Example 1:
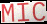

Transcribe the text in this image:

MIC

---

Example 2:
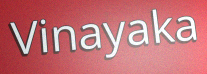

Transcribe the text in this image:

Vinayaka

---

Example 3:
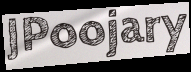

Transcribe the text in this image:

JPoojary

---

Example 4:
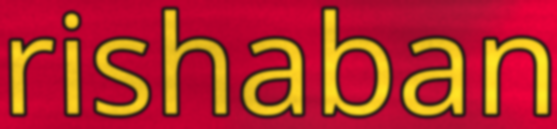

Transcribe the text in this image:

rishaban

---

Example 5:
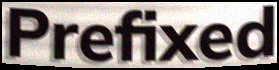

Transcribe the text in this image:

Prefixed